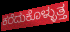
ಕರೆದುಕೊಳ್ಳುತ್ತ